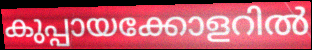
കുപ്പായക്കോളറിൽ